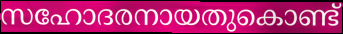
സഹോദരനായതുകൊണ്ട്